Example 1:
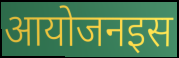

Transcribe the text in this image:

आयोजनइस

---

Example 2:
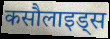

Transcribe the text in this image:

कसौलाइड्स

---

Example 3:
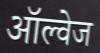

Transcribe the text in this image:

ऑल्वेज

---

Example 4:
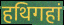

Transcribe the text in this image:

हथिगहां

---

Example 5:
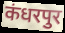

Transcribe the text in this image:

कंधरपुर